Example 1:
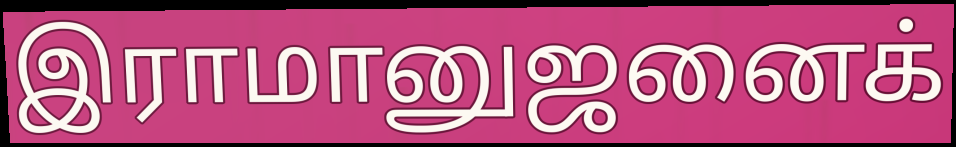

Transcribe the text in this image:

இராமானுஜனைக்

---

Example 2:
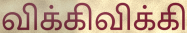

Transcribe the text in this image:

விக்கிவிக்கி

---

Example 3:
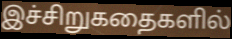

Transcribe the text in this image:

இச்சிறுகதைகளில்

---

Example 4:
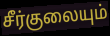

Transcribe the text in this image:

சீர்குலையும்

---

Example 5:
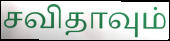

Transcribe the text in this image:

சவிதாவும்